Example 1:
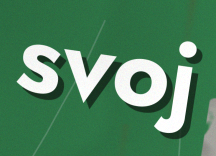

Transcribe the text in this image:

svoj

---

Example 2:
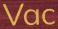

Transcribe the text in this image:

Vac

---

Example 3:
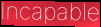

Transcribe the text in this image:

Incapable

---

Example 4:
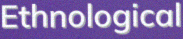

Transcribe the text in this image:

Ethnological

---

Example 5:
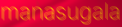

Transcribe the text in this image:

manasugala